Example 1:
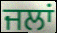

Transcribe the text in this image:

ਜਲਾਂ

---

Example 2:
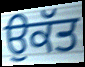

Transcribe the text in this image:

ਉਕੱਤ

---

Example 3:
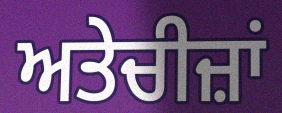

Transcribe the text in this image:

ਅਤੇਚੀਜ਼ਾਂ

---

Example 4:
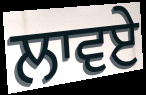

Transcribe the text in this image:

ਲਾਵਏ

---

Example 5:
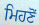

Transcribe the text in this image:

ਮਿਹਣੋਂ